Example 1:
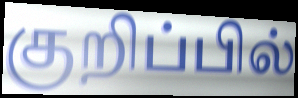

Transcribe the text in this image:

குறிப்பில்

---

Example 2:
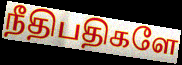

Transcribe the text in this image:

நீதிபதிகளே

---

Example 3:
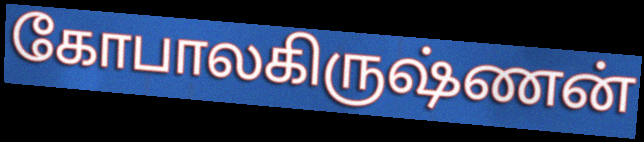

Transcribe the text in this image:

கோபாலகிருஷ்ணன்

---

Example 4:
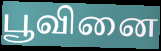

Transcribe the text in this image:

பூவினை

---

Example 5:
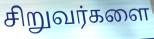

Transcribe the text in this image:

சிறுவர்களை